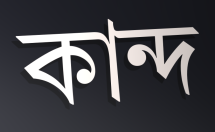
কান্দ